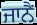
ਜਾਨੈਂ